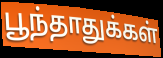
பூந்தாதுக்கள்